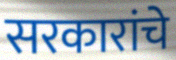
सरकारांचे